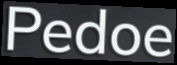
Pedoe